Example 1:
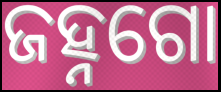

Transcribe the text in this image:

ଜହ୍ନଗୋ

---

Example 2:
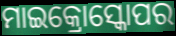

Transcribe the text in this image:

ମାଇକ୍ରୋସ୍କୋପର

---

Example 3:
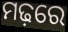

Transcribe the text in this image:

ମଢ଼ରେ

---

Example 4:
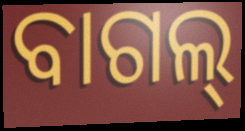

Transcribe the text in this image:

ବାଗଲ୍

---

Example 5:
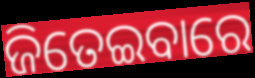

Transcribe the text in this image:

ଜିତେଇବାରେ